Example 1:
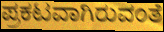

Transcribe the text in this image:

ಪ್ರಕಟವಾಗಿರುವಂತೆ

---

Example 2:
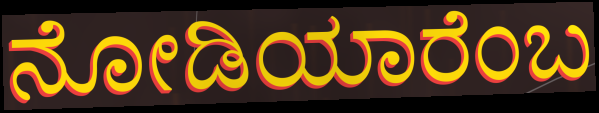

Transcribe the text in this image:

ನೋಡಿಯಾರೆಂಬ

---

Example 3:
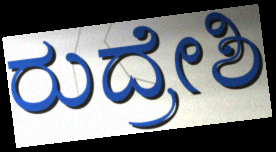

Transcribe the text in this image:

ರುದ್ರೇಶಿ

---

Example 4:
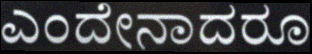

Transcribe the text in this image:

ಎಂದೇನಾದರೂ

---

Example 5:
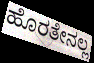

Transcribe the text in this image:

ಹೊರತೇನಲ್ಲ